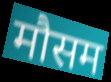
मौसम